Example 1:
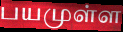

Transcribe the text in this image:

பயமுள்ள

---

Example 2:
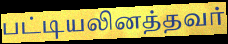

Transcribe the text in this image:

பட்டியலினத்தவர்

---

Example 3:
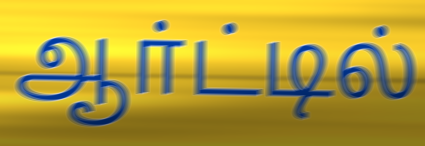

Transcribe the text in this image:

ஆர்ட்டில்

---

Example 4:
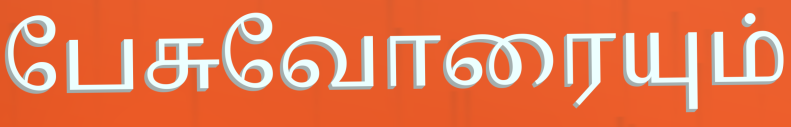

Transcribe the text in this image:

பேசுவோரையும்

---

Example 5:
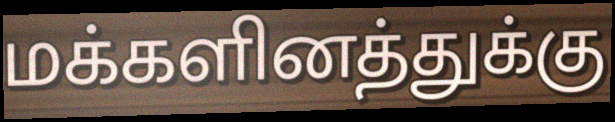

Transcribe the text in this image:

மக்களினத்துக்கு